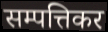
सम्पत्तिकर